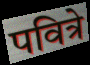
पवित्रे